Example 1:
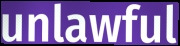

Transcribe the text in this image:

unlawful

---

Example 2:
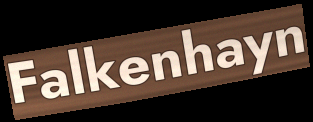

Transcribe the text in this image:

Falkenhayn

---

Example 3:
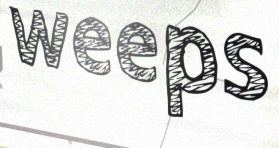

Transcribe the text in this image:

weeps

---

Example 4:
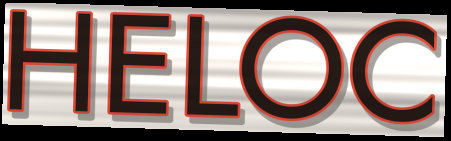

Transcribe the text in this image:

HELOC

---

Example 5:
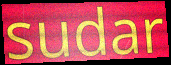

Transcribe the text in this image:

sudar